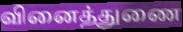
வினைத்துணை